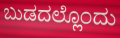
ಬುಡದಲ್ಲೊಂದು